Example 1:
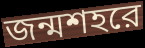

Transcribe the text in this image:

জন্মশহরে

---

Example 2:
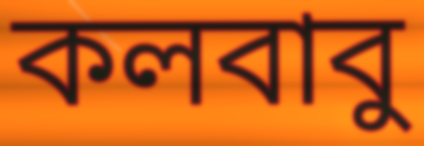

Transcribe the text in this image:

কলবাবু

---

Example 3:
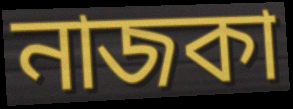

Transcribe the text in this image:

নাজকা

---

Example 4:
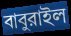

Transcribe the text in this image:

বাবুরাইল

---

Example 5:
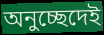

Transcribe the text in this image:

অনুচ্ছেদেই